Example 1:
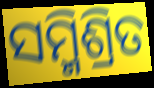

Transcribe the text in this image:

ସମ୍ମିଶ୍ରିତ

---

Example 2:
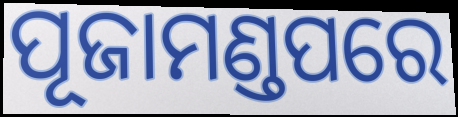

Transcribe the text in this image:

ପୂଜାମଣ୍ଡପରେ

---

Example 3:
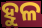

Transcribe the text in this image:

ହୁଳ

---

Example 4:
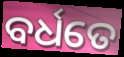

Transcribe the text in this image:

ବର୍ଧତେ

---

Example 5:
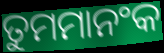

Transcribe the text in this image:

ତୁମମାନଂକ